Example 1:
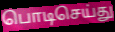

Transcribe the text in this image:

பொடிசெய்து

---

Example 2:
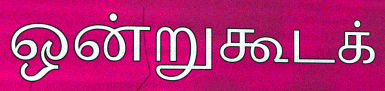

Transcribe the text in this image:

ஒன்றுகூடக்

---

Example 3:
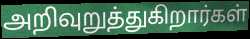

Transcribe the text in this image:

அறிவுறுத்துகிறார்கள்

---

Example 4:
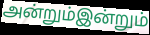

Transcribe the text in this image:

அன்றும்இன்றும்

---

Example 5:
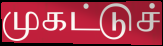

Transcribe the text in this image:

முகட்டுச்